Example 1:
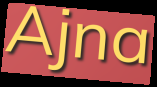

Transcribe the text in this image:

Ajna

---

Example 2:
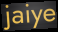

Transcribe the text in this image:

jaiye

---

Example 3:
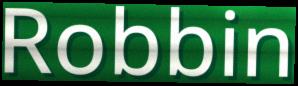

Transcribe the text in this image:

Robbin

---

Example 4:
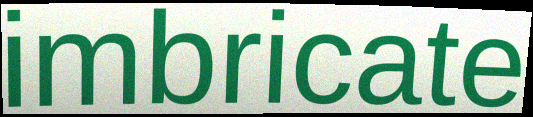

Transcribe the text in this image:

imbricate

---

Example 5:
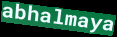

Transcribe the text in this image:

abhalmaya